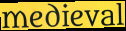
medieval